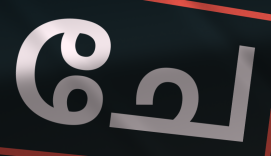
ചേ